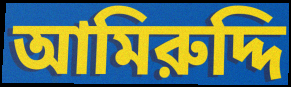
আমিরুদ্দি